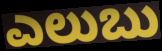
ಎಲುಬು